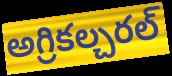
అగ్రికల్చరల్